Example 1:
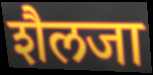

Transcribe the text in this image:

शैलजा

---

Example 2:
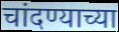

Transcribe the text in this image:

चांदण्याच्या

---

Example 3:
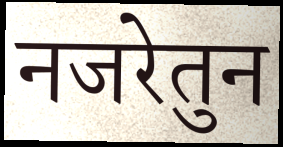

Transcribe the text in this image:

नजरेतुन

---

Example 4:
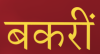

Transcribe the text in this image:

बकरीं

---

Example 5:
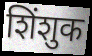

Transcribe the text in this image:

शिंशुक